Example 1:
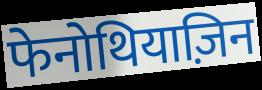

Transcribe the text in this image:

फेनोथियाज़िन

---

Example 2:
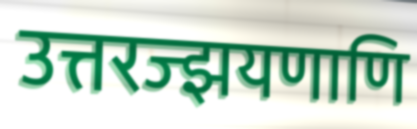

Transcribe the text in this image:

उत्तरज्झयणाणि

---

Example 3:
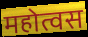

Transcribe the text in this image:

महोत्वस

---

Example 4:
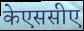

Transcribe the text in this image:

केएससीए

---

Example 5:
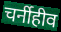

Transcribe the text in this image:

चर्नीहीव